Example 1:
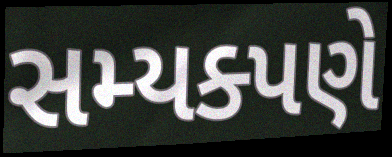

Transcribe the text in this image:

સમ્યક્પણે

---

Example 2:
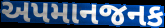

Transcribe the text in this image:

અપમાનજનક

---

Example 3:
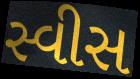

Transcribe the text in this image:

સ્વીસ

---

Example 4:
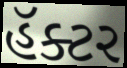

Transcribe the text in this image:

હૅક્ટર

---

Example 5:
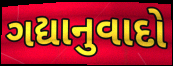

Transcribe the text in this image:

ગદ્યાનુવાદો